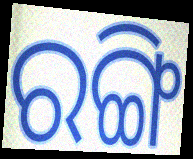
ରଙ୍ଗି